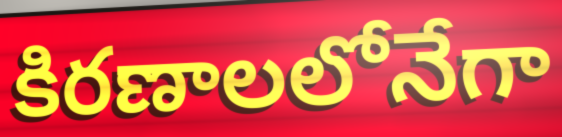
కిరణాలలోనేగా